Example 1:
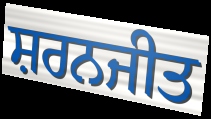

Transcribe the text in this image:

ਸ਼ਰਨਜੀਤ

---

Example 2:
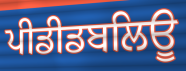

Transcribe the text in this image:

ਪੀਡੀਡਬਲਿਊ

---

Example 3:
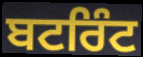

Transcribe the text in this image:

ਬਟਰਿੰਟ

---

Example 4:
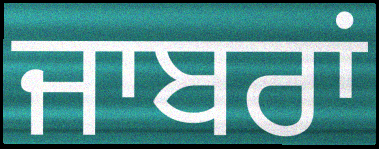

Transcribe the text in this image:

ਜਾਬਰਾਂ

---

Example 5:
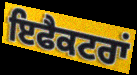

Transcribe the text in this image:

ਇਫੈਕਟਰਾਂ